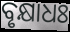
ବୃକ୍ଷାଧଃ